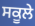
ਸਕੂਲੇ